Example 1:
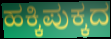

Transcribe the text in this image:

ಹಕ್ಕಿಪುಕ್ಕದ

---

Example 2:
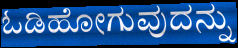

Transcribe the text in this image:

ಓಡಿಹೋಗುವುದನ್ನು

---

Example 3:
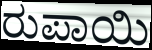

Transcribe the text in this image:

ರುಪಾಯಿ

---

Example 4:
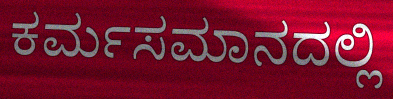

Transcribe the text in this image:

ಕರ್ಮಸಮಾನದಲ್ಲಿ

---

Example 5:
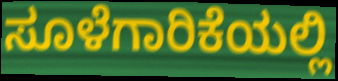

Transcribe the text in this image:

ಸೂಳೆಗಾರಿಕೆಯಲ್ಲಿ